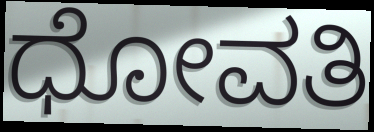
ಧೋವತಿ